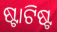
ଷ୍ଟାଟିଷ୍ଟ